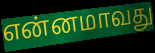
என்னமாவது